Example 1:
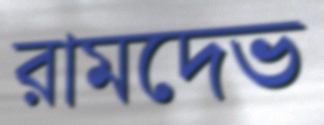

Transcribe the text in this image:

রামদেভ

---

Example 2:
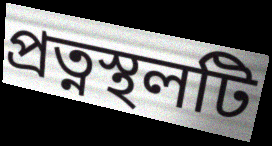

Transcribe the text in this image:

প্রত্নস্থলটি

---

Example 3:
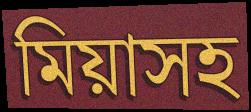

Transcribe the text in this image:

মিয়াসহ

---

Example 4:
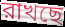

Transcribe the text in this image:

রাখছে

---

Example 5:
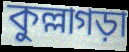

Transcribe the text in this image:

কুল্লাগড়া